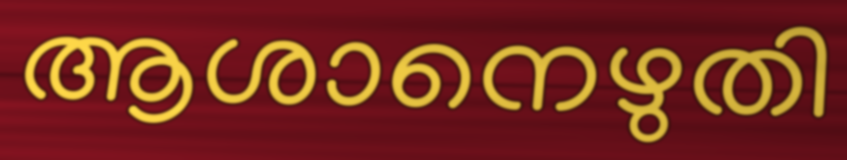
ആശാനെഴുതി